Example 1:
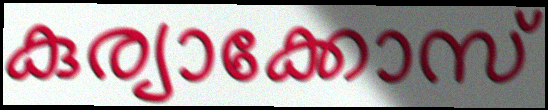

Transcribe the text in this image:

കുര്യാക്കോസ്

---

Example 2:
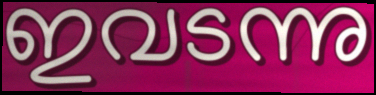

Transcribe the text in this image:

ഇവടന്നു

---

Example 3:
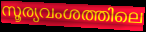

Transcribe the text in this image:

സൂര്യവംശത്തിലെ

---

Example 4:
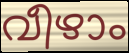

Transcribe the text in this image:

വീഴാം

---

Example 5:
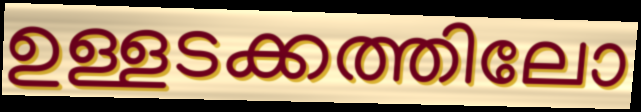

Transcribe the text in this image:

ഉള്ളടക്കത്തിലോ